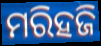
ମରିହଜି